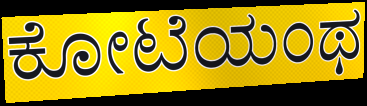
ಕೋಟೆಯಂಥ